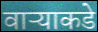
वाऱ्याकडे